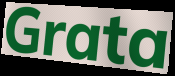
Grata